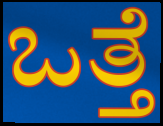
ಒತ್ತೆ